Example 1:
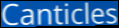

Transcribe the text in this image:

Canticles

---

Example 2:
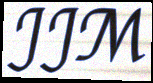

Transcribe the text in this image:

JJM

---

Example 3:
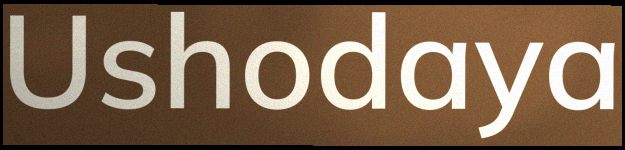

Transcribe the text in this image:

Ushodaya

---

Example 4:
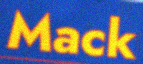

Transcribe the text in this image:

Mack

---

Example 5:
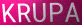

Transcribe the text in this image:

KRUPA